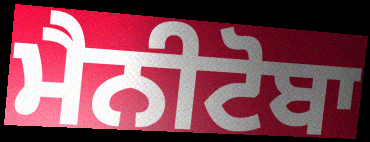
ਮੈਨੀਟੋਬਾ